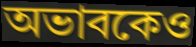
অভাবকেও